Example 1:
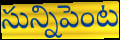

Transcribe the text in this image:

సున్నిపెంట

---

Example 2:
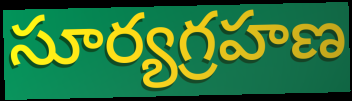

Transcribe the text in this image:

సూర్యగ్రహణ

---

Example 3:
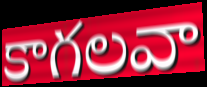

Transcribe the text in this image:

కాగలవా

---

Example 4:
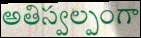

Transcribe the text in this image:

అతిస్వల్పంగా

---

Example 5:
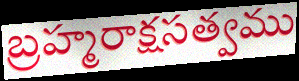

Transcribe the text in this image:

బ్రహ్మరాక్షసత్వము